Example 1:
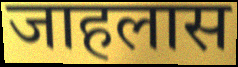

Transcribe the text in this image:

जाहलास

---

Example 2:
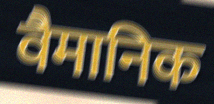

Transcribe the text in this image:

वैमानिक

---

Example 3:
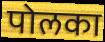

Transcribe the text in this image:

पोलका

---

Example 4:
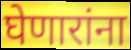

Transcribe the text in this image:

घेणारांना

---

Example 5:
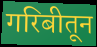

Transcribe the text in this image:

गरिबीतून